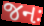
જનઃ